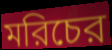
মরিচের